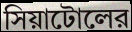
সিয়াটোলের